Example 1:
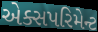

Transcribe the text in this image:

એક્સપરિમેન્ટ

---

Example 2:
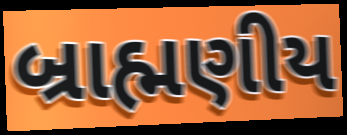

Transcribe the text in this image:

બ્રાહ્મણીય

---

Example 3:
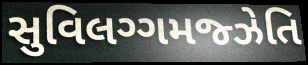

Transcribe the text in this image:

સુવિલગ્ગમજ્ઝેતિ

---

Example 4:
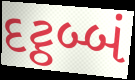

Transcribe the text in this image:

દટ્ઠબ્બં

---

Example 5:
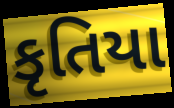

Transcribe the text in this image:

કૃતિયા